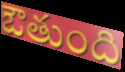
ఔతుంది